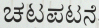
ಚಟಪಟನೆ